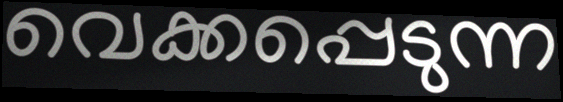
വെക്കപ്പെടുന്ന